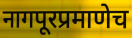
नागपूरप्रमाणेच